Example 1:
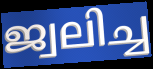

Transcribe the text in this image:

ജ്വലിച്ച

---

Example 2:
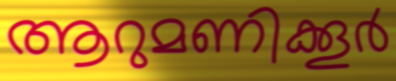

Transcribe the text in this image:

ആറുമണിക്കൂർ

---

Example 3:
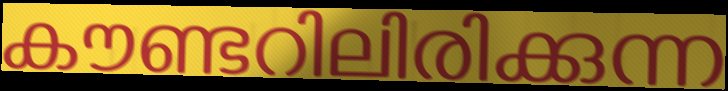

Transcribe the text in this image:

കൗണ്ടറിലിരിക്കുന്ന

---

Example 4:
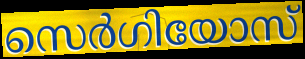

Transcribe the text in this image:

സെർഗിയോസ്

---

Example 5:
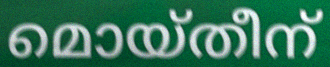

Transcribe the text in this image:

മൊയ്തീന്